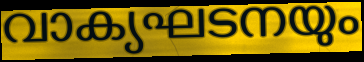
വാക്യഘടനയും